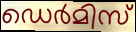
ഡെർമിസ്